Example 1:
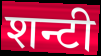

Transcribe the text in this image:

शन्टी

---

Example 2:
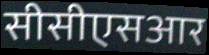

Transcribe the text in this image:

सीसीएसआर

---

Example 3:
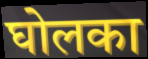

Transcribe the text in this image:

घोलका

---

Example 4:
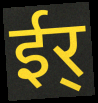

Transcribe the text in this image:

ईर्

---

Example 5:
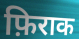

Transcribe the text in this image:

फ़िराक